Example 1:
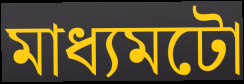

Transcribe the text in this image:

মাধ্যমটো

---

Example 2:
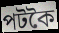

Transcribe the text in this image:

পটকৈ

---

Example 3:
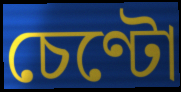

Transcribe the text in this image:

চেণ্টো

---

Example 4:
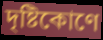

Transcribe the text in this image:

দৃষ্টিকোণে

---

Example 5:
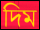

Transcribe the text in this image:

দিম